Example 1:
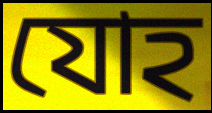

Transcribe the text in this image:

যোহ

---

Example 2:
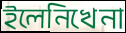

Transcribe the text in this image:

ইলেনিখেনা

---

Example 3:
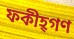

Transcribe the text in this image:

ফকীহ্গণ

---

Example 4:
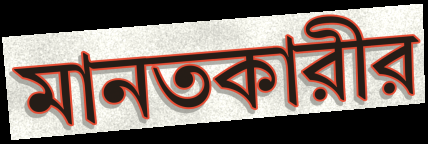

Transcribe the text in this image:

মানতকারীর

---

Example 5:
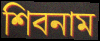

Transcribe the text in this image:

শিবনাম